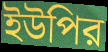
ইউপির